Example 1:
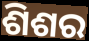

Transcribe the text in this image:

ଶିଶର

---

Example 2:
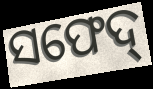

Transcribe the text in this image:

ସଫେଦ୍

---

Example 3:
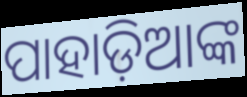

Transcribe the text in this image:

ପାହାଡ଼ିଆଙ୍କ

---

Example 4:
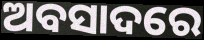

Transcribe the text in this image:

ଅବସାଦରେ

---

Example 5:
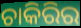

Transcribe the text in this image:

ଚାକିରିର